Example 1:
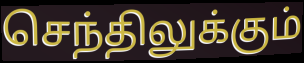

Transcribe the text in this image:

செந்திலுக்கும்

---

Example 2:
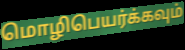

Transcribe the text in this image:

மொழிபெயர்க்கவும்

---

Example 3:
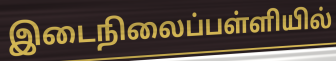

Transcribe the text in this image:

இடைநிலைப்பள்ளியில்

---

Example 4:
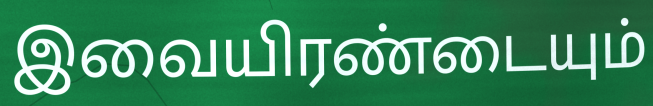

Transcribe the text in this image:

இவையிரண்டையும்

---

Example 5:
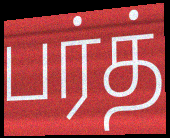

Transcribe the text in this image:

பர்த்